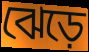
ঝেড়ে